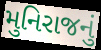
મુનિરાજનું